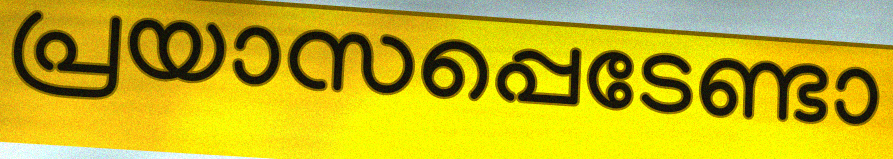
പ്രയാസപ്പെടേണ്ടാ